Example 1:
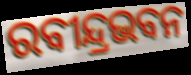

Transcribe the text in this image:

ରବୀନ୍ଦ୍ରଭବନ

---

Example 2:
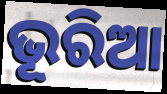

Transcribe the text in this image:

ଭୂରିଆ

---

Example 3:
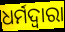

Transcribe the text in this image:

ଧର୍ମଦ୍ୱାରା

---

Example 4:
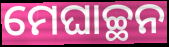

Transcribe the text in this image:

ମେଘାଚ୍ଛନ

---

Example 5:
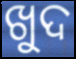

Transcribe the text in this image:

ଖୁଦ